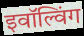
इवॉल्विंग